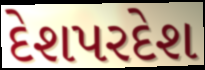
દેશપરદેશ